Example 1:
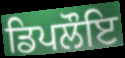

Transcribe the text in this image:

ਡਿਪਲੌਇ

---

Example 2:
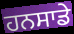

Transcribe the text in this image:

ਹਨਸਾਡੇ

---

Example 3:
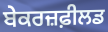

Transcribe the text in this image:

ਬੇਕਰਜ਼ਫ਼ੀਲਡ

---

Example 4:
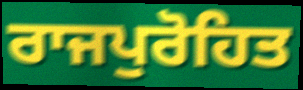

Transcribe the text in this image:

ਰਾਜਪੁਰੋਹਿਤ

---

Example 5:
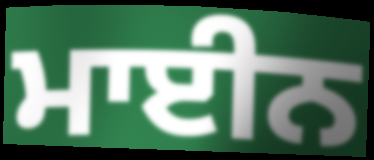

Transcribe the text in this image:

ਮਾਈਨ